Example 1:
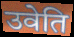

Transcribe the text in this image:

उवेति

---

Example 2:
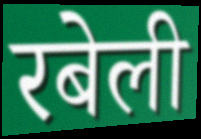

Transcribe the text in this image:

रबेली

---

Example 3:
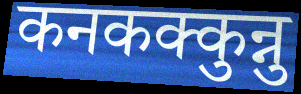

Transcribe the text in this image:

कनकक्कुन्नु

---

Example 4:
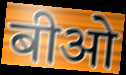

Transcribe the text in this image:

बीओ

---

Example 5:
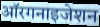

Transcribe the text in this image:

ऑरगनाइजेशन